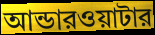
আন্ডারওয়াটার